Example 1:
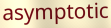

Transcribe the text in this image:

asymptotic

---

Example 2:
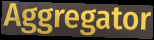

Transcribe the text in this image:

Aggregator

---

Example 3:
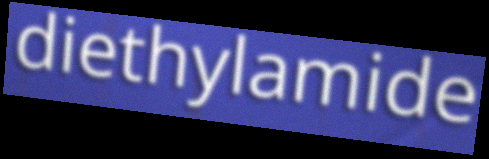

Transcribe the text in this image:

diethylamide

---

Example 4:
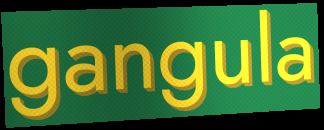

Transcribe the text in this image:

gangula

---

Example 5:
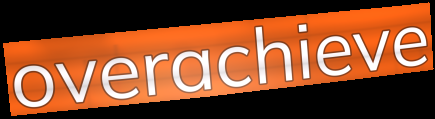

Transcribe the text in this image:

overachieve